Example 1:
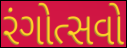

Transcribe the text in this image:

રંગોત્સવો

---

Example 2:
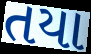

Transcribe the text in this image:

તયા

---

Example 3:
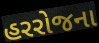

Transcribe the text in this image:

હરરોજના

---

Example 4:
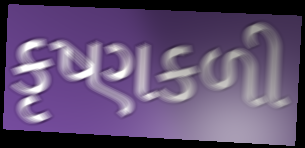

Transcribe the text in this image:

કૃષ્ણકળી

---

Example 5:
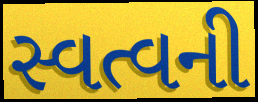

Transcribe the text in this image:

સ્વત્વની